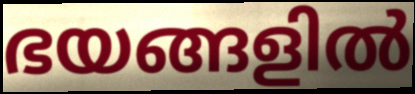
ഭയങ്ങളിൽ